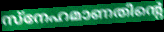
സ്നേഹമാണതിന്റെ